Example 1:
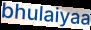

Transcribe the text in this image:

bhulaiyaa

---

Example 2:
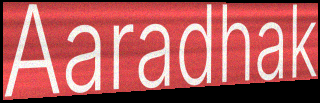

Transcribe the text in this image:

Aaradhak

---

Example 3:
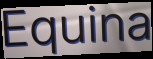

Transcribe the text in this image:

Equina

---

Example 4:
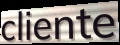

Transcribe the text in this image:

cliente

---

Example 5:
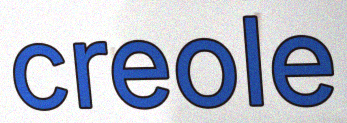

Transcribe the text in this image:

creole